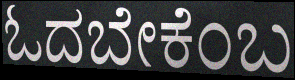
ಓದಬೇಕೆಂಬ